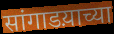
सांगाडय़ाच्या